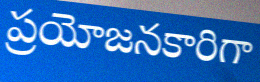
ప్రయోజనకారిగా